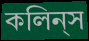
কলিন্‌স